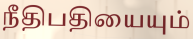
நீதிபதியையும்